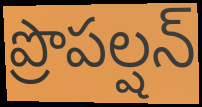
ప్రొపల్షన్